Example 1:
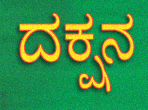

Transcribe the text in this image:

ದಕ್ಷನ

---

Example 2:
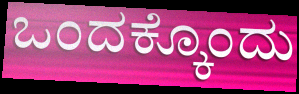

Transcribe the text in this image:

ಒಂದಕ್ಕೊಂದು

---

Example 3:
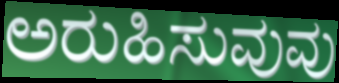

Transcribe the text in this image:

ಅರುಹಿಸುವುವು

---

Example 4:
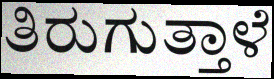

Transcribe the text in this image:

ತಿರುಗುತ್ತಾಳೆ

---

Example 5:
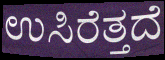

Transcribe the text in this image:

ಉಸಿರೆತ್ತದೆ